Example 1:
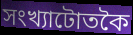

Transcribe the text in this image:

সংখ্যাটোতকৈ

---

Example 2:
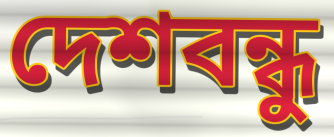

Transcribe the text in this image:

দেশবন্ধু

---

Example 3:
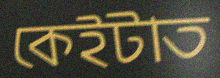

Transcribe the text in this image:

কেইটাত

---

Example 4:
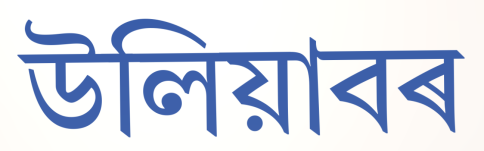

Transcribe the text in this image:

উলিয়াবৰ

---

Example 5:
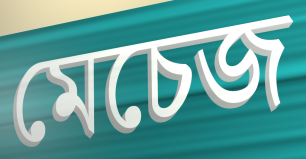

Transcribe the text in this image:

মেচেজ